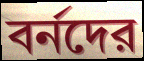
বর্নদের